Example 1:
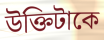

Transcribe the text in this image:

উক্তিটাকে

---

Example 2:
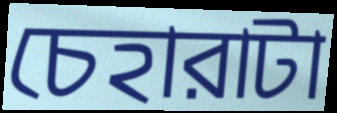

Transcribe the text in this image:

চেহারাটা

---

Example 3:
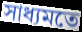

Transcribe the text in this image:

সাধ্যমতে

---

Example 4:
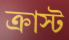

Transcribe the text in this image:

ক্রাস্ট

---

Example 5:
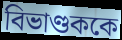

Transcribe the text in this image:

বিভাণ্ডককে